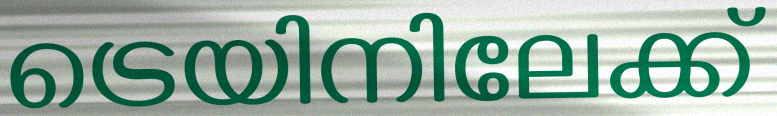
ട്രെയിനിലേക്ക്